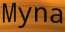
Myna